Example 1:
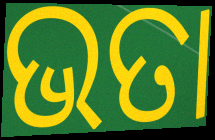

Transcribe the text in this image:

ଭତା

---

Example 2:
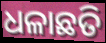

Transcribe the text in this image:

ଧଳାଛତି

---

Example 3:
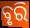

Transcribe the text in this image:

ବୃରି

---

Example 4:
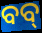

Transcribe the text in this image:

ବବ୍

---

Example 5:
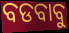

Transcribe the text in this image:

ବଡବାବୁ